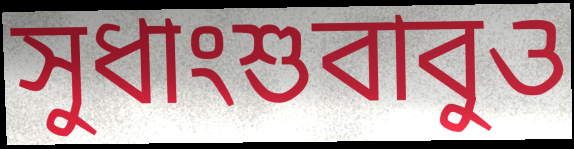
সুধাংশুবাবুও